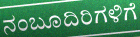
ನಂಬೂದಿರಿಗಳಿಗೆ